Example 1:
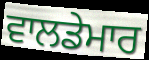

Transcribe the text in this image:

ਵਾਲਡੇਮਾਰ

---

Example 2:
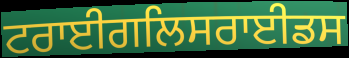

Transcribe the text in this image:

ਟਰਾਈਗਲਿਸਰਾਈਡਸ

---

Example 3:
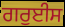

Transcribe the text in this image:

ਗਰੁਈਸ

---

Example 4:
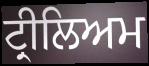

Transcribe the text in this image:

ਟ੍ਰੀਲਿਅਮ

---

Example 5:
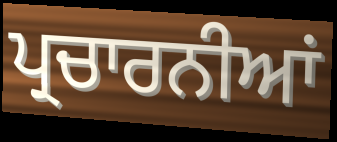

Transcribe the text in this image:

ਪ੍ਰਚਾਰਨੀਆਂ